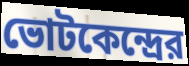
ভোটকেন্দ্রের